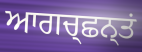
ਆਗਚ੍ਛਨ੍ਤਂ